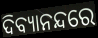
ଦିବ୍ୟାନନ୍ଦରେ